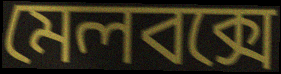
মেলবক্সে